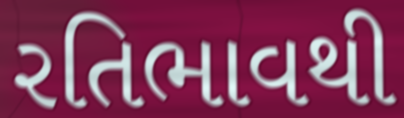
રતિભાવથી